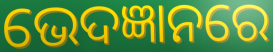
ଭେଦଜ୍ଞାନରେ